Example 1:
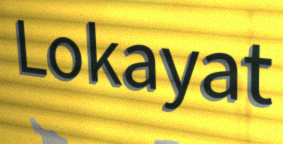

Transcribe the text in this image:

Lokayat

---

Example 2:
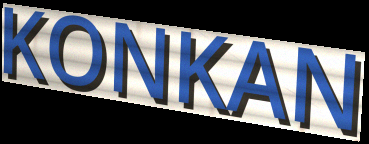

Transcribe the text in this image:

KONKAN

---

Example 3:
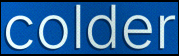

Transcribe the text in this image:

colder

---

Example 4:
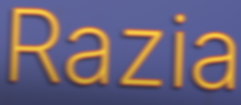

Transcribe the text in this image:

Razia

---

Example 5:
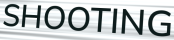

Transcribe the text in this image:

SHOOTING